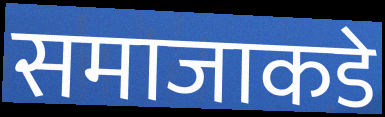
समाजाकडे